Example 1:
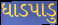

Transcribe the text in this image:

ધાડપાડુ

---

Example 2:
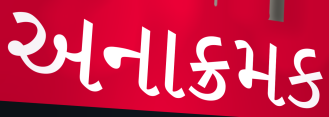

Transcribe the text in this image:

અનાક્રમક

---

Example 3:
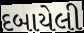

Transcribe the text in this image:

દબાયેલી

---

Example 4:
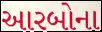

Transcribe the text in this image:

આરબોના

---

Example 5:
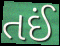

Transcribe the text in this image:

તઈં